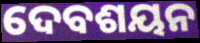
ଦେବଶୟନ